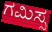
ಗಮಿಸ್ಸ